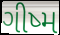
ગીષ્મ